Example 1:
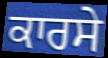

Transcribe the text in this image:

ਕਾਰਸੇ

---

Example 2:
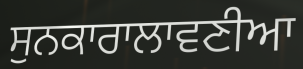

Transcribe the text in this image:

ਸੁਨਕਾਰਾਲਾਵਣੀਆ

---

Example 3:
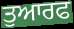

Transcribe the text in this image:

ਤੁਆਰਫ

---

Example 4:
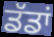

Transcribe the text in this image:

ਡੱਡਾਂ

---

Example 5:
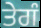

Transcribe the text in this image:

ਤੇਗੰ